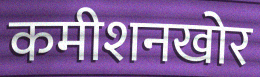
कमीशनखोर